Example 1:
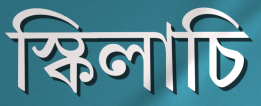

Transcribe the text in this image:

স্কিলাচি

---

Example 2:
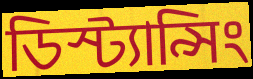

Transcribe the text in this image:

ডিস্ট্যান্সিং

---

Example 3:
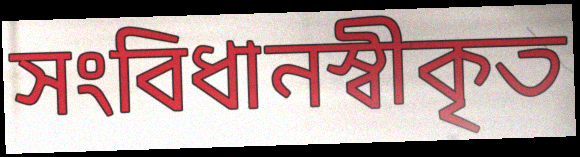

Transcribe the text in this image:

সংবিধানস্বীকৃত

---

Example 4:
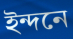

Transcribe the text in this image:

ইন্দনে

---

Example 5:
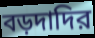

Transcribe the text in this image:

বড়দাদির